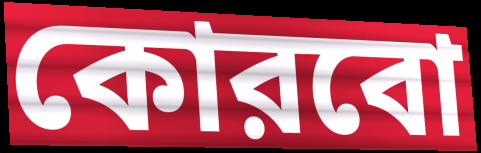
কোরবো